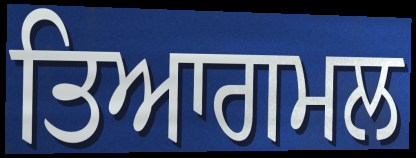
ਤਿਆਗਮਲ